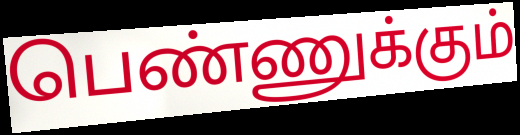
பெண்ணுக்கும்